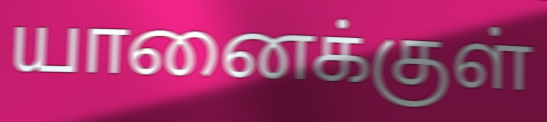
யானைக்குள்